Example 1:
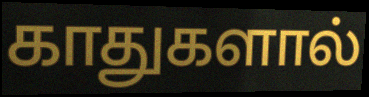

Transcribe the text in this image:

காதுகளால்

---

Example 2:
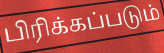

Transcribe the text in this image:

பிரிக்கப்படும்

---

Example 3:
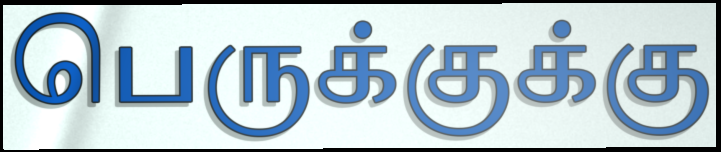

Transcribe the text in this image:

பெருக்குக்கு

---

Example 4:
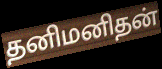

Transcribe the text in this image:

தனிமனிதன்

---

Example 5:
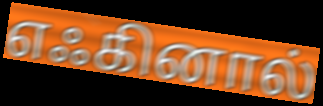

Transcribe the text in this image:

எஃகினால்